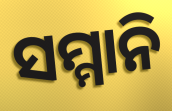
ସମ୍ମାନି